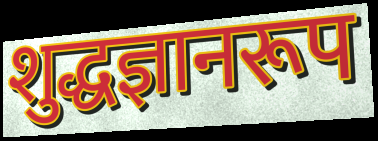
शुद्धज्ञानरूप